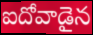
ఐదోవాడైన